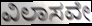
ವಿಲಾಸವೇ